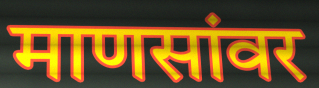
माणसांवर